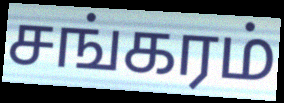
சங்கரம்